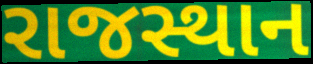
રાજસ્થાન